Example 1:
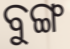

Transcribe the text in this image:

ବୁଙ୍ଗ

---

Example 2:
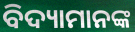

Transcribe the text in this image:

ବିଦ୍ୟାମାନଙ୍କ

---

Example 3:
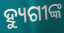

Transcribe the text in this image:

ହ୍ୟୁଗୀଙ୍କ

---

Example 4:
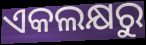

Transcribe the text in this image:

ଏକଲକ୍ଷରୁ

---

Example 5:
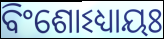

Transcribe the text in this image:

ବିଂଶୋଽଧ୍ୟାୟଃ